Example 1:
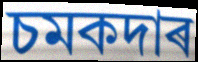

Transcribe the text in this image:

চমকদাৰ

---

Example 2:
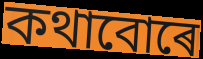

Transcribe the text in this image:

কথাবোৰে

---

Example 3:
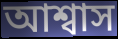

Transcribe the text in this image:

আশ্বাস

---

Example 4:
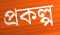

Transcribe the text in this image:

প্ৰকল্প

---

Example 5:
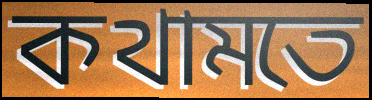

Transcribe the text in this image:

কথামতে